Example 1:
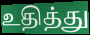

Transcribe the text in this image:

உதித்து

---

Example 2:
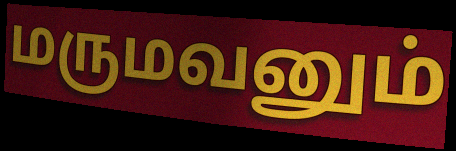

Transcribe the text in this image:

மருமவனும்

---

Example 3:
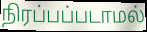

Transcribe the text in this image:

நிரப்பப்படாமல்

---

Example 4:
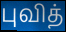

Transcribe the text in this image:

புவித்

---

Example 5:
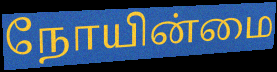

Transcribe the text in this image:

நோயின்மை